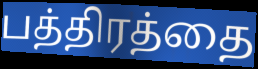
பத்திரத்தை